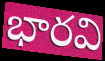
భారవి